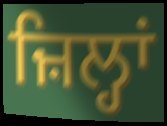
ਜ਼ਿਲ੍ਹਾਂ